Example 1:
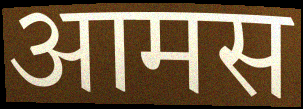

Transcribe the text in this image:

आमस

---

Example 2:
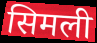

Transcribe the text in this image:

सिमली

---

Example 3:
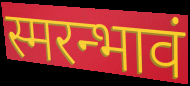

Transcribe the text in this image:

स्मरन्भावं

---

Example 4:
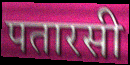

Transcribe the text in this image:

पतारसी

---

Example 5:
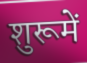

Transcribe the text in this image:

शुरूमें